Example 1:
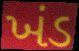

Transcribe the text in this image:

ખંડ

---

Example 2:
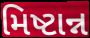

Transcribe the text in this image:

મિષ્ટાન્ન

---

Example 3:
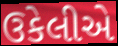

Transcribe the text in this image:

ઉકેલીએ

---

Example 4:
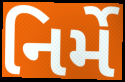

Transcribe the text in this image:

નિર્મે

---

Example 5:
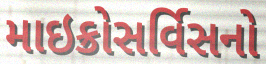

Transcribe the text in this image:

માઇક્રોસર્વિસનો